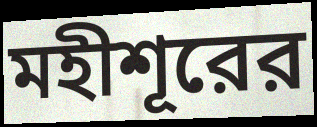
মহীশূরের